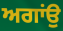
ਅਗਾਂਉ